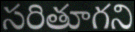
సరితూగని